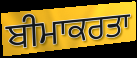
ਬੀਮਾਕਰਤਾ